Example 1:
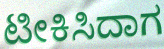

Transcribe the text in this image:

ಟೀಕಿಸಿದಾಗ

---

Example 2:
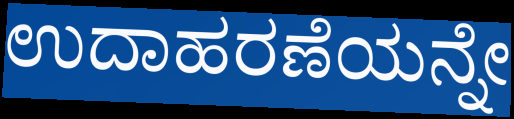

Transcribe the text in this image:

ಉದಾಹರಣೆಯನ್ನೇ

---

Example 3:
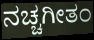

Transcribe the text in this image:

ನಚ್ಚಗೀತಂ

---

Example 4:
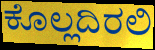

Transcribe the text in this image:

ಕೊಲ್ಲದಿರಲಿ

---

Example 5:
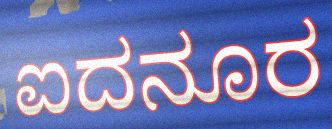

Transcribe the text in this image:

ಐದನೂರ